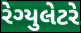
રેગ્યુલેટરે